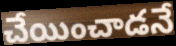
చేయించాడనే